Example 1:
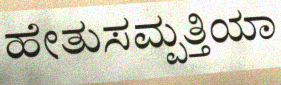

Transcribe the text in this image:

ಹೇತುಸಮ್ಪತ್ತಿಯಾ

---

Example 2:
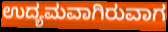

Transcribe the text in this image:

ಉದ್ಯಮವಾಗಿರುವಾಗ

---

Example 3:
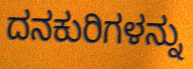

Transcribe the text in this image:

ದನಕುರಿಗಳನ್ನು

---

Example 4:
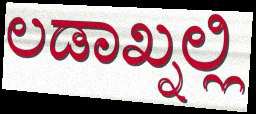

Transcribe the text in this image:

ಲಡಾಖ್ನಲ್ಲಿ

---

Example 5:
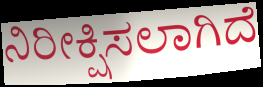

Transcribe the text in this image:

ನಿರೀಕ್ಷಿಸಲಾಗಿದೆ